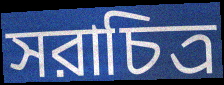
সরাচিত্র